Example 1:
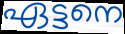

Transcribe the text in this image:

ഏട്ടനെ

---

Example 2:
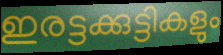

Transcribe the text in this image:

ഇരട്ടക്കുട്ടികളും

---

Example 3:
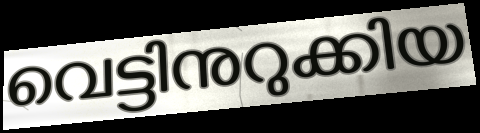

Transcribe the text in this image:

വെട്ടിനുറുക്കിയ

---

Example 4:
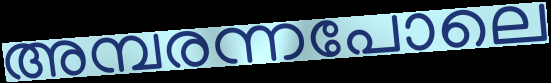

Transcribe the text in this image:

അമ്പരന്നപോലെ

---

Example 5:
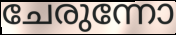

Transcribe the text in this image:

ചേരുന്നോ